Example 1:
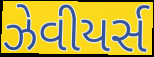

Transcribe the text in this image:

ઝેવીયર્સ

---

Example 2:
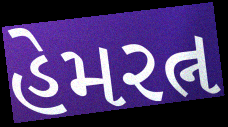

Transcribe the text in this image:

હેમરત્ન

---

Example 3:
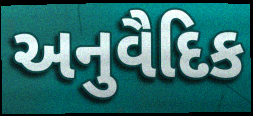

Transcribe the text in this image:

અનુવૈદિક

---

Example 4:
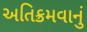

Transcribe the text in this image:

અતિક્રમવાનું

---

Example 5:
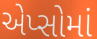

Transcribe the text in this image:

એપ્સોમાં